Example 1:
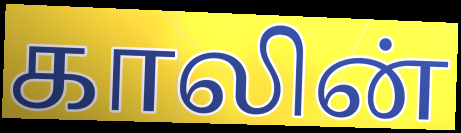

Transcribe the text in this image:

காலின்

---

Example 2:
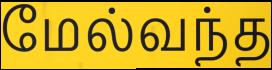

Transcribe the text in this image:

மேல்வந்த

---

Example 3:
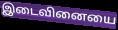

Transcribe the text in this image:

இடைவினையை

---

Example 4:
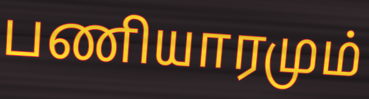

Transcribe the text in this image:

பணியாரமும்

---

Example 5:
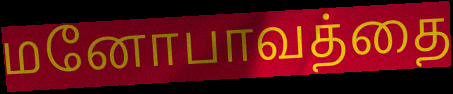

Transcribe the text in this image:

மனோபாவத்தை